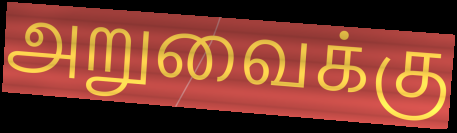
அறுவைக்கு